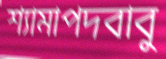
শ্যামাপদবাবু